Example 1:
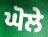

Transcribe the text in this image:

ਘੋਲੇ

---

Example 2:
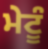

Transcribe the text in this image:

ਮੇਟੂੰ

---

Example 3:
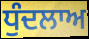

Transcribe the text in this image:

ਧੁੰਦਲਾਅ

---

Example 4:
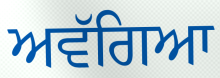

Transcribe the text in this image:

ਅਵੱਗਿਆ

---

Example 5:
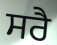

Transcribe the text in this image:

ਸਰੈ